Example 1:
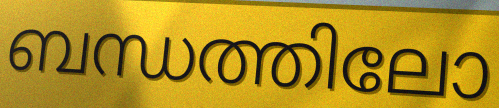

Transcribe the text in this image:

ബന്ധത്തിലോ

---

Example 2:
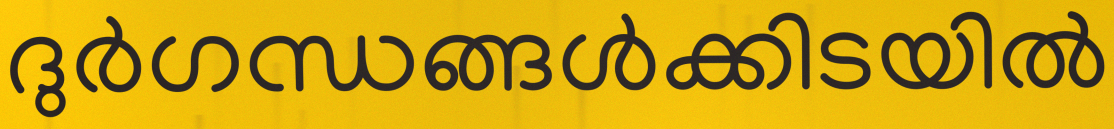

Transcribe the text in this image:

ദുർഗന്ധങ്ങൾക്കിടയിൽ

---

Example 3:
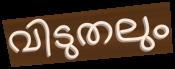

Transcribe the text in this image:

വിടുതലും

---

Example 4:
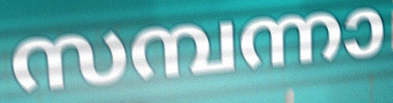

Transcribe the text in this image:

സമ്പന്നാ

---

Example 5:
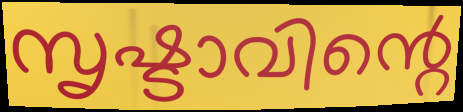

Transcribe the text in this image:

സൃഷ്ടാവിന്റെ